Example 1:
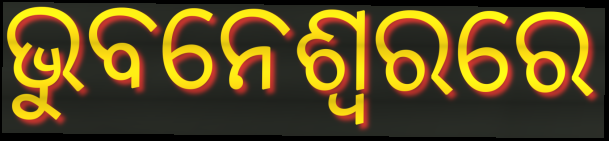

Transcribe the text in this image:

ଭୁବନେଶ୍ୱରରେ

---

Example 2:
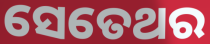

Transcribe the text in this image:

ସେତେଥର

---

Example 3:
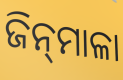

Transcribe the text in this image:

ଜିନ୍‌ମାଳା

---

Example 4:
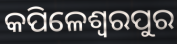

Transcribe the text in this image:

କପିଳେଶ୍ୱରପୁର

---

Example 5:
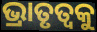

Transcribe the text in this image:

ଭ୍ରାତୃତ୍ୱକୁ